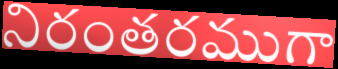
నిరంతరముగా